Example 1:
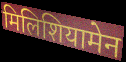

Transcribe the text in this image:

मिलिशियामेन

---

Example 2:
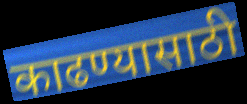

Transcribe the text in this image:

काढण्यासाठी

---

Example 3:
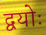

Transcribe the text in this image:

द्वयोः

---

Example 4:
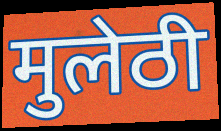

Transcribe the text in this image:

मुलेठी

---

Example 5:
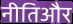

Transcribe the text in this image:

नीतिऔर